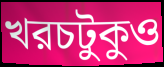
খরচটুকুও